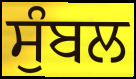
ਸੁੰਬਲ